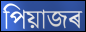
পিয়াজৰ